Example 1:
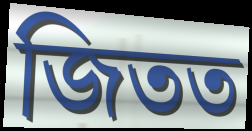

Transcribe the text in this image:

জিতত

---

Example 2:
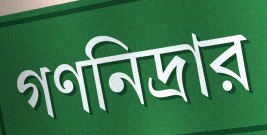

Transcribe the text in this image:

গণনিদ্রার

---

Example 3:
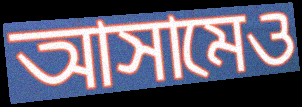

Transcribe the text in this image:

আসামেও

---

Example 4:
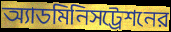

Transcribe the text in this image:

অ্যাডমিনিসট্রেশনের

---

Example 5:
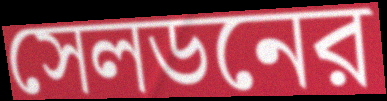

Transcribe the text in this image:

সেলডনের